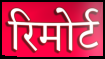
रिमोर्ट